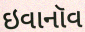
ઇવાનૉવ